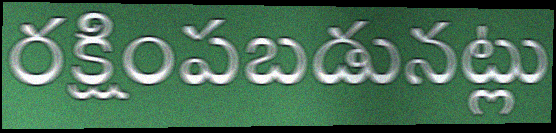
రక్షింపబడునట్లు